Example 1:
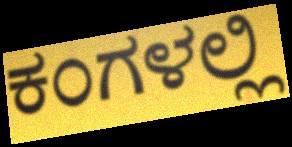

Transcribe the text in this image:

ಕಂಗಳಲ್ಲಿ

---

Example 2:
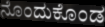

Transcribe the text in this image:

ನೊಂದುಕೊಂಡ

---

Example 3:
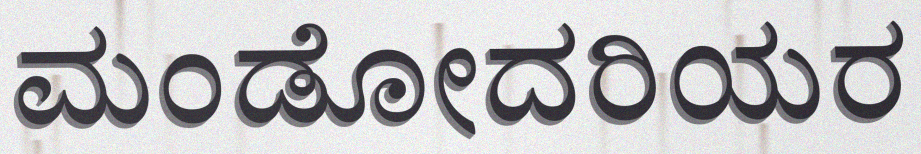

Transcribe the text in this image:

ಮಂಡೋದರಿಯರ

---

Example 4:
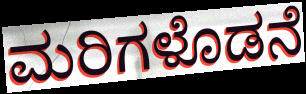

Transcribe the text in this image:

ಮರಿಗಳೊಡನೆ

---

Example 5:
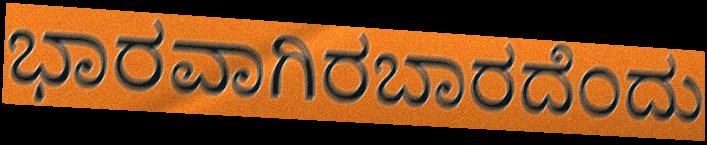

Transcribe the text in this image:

ಭಾರವಾಗಿರಬಾರದೆಂದು